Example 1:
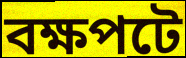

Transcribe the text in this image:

বক্ষপটে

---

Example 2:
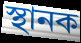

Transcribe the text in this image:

স্থানক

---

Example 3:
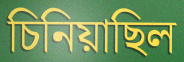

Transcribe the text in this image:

চিনিয়াছিল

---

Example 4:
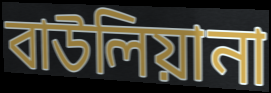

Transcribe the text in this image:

বাউলিয়ানা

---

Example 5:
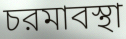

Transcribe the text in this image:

চরমাবস্থা